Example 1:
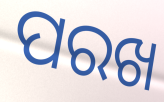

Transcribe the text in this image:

ପରଖ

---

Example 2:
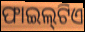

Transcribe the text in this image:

ଫାଇଲ୍‌ଟିଏ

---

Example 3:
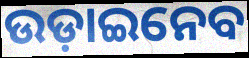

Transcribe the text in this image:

ଉଡ଼ାଇନେବ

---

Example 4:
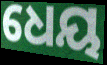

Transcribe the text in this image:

ଧେୟ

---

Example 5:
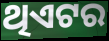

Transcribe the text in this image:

ଥିଏଟର